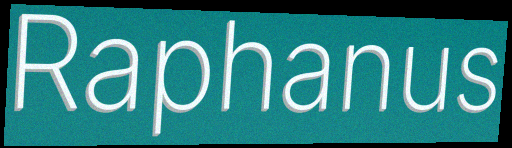
Raphanus